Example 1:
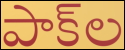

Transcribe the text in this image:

పాక్‌ల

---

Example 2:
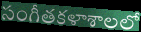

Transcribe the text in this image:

సంగీతకళాశాలలో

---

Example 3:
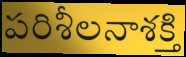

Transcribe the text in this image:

పరిశీలనాశక్తి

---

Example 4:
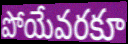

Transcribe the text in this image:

పోయేవరకూ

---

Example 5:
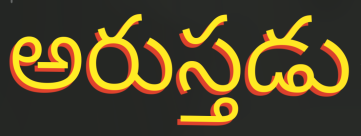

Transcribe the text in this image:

అరుస్తడు